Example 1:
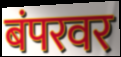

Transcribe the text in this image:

बंपरवर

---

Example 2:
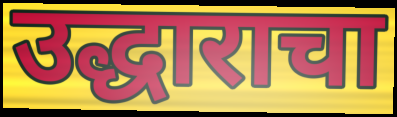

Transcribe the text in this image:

उद्धाराचा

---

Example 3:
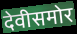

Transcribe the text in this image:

देवीसमोर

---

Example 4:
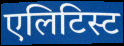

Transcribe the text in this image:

एलिटिस्ट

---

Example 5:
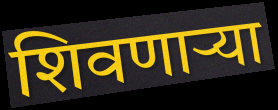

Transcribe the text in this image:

शिवणाऱ्या